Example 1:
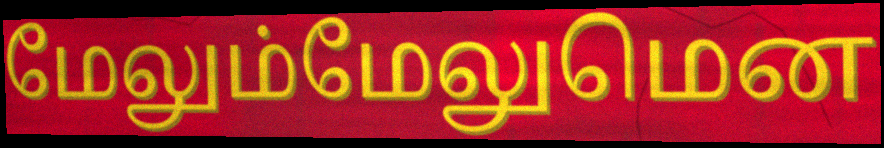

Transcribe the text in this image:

மேலும்மேலுமென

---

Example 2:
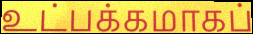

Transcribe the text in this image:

உட்பக்கமாகப்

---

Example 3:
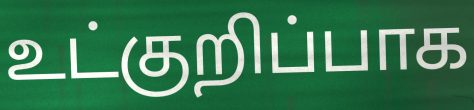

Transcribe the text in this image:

உட்குறிப்பாக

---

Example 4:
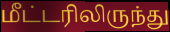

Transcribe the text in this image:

மீட்டரிலிருந்து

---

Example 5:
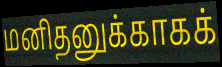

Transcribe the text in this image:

மனிதனுக்காகக்